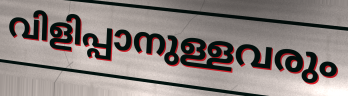
വിളിപ്പാനുള്ളവരും